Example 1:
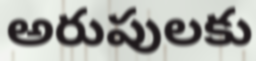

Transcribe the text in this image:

అరుపులకు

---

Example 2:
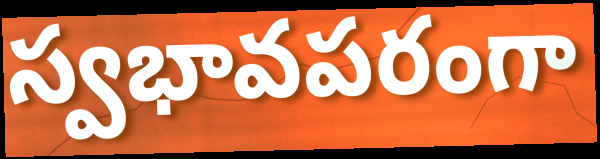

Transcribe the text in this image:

స్వభావపరంగా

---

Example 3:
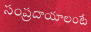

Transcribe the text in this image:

సంప్రదాయాలంటే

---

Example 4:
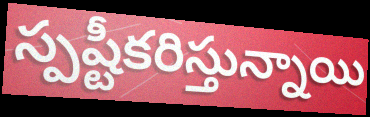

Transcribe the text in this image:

స్పష్టీకరిస్తున్నాయి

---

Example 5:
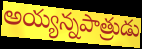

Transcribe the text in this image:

అయ్యన్నపాత్రుడు